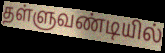
தள்ளுவண்டியில்